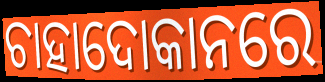
ଚାହାଦୋକାନରେ